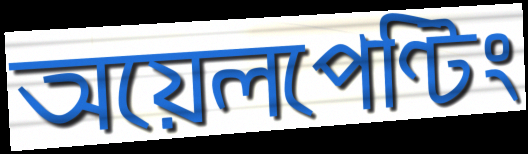
অয়েলপেণ্টিং